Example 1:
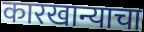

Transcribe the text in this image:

कारखान्याचा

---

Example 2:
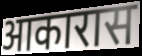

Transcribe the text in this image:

आकारास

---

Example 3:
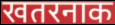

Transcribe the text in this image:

खतरनाक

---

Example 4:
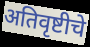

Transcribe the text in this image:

अतिवृष्टीचे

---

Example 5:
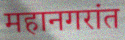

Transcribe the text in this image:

महानगरांत